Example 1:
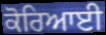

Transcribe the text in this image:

ਕੋਰਿਆਈ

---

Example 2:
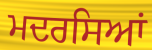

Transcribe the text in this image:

ਮਦਰਸਿਆਂ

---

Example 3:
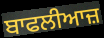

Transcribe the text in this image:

ਬਾਫਲੀਆਜ਼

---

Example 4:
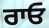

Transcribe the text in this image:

ਰਾਓ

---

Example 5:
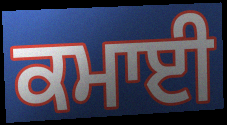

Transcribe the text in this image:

ਕਮਾਈ